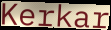
Kerkar